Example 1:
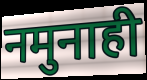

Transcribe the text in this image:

नमुनाही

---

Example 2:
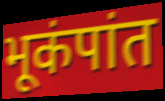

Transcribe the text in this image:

भूकंपांत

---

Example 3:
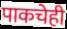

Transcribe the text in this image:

पाकचेही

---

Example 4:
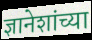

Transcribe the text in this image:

ज्ञानेशांच्या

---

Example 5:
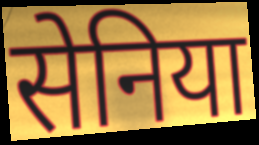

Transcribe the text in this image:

सेनिया